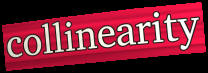
collinearity